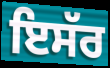
ਇਸੱਰ